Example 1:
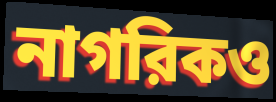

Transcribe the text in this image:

নাগরিকও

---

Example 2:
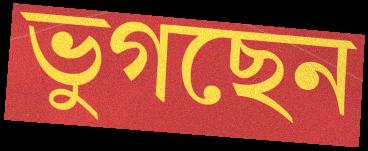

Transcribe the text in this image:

ভুগছেন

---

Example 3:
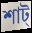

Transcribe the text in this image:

শাট্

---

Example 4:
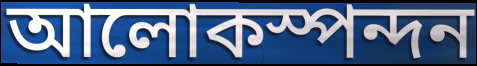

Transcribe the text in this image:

আলোকস্পন্দন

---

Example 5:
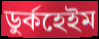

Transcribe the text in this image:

ডুর্কহেইম